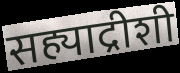
सह्याद्रीशी